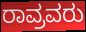
ರಾವ್ರವರು